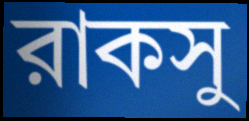
রাকসু